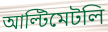
আল্টিমেটলি